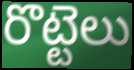
రొట్టెలు